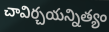
చావిర్చయన్నిత్యం